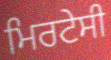
ਮਿਰਟੇਸੀ